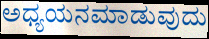
ಅಧ್ಯಯನಮಾಡುವುದು